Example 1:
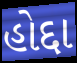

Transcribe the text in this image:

હોદ્દા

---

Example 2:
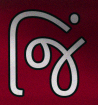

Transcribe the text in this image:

જિં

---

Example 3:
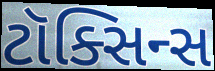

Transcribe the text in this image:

ટૉક્સિન્સ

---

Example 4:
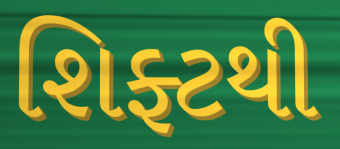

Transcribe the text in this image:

શિફ્ટથી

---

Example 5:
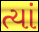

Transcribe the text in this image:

ત્યાં